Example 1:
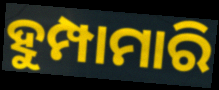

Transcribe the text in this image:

ହୁମ୍ପାମାରି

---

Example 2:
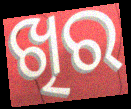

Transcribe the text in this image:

ଖିର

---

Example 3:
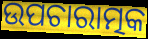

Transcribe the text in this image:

ଉପଚାରାତ୍ମକ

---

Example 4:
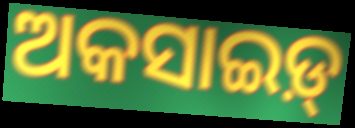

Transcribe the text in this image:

ଅକସାଇଡ଼୍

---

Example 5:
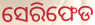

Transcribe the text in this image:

ସେରିଫେଡ